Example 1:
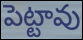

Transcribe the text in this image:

పెట్టావు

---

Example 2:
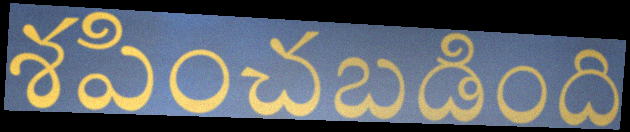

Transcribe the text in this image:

శపించబడింది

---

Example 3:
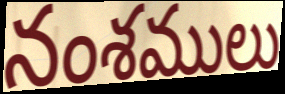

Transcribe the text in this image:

నంశములు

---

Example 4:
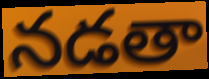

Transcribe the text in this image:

నడతా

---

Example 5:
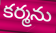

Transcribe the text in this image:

కర్మను